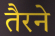
तैरने